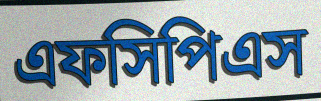
এফসিপিএস